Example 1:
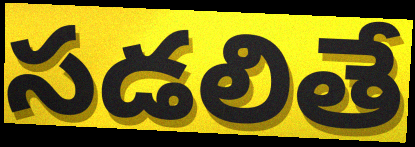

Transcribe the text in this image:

సడలితే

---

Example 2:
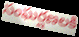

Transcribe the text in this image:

సంఘర్షణలకి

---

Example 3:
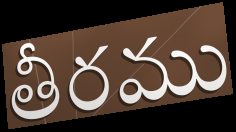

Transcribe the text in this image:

తీరము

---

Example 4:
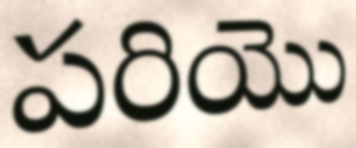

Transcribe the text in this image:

పరియొ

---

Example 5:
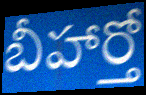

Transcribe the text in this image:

బీహార్తో